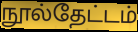
நூல்தேட்டம்